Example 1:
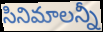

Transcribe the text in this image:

సినిమాలన్నీ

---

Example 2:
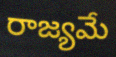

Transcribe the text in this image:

రాజ్యమే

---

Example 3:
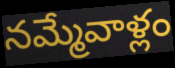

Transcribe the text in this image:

నమ్మేవాళ్లం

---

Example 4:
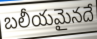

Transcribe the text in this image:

బలీయమైనదే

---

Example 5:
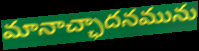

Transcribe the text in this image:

మానాచ్ఛాదనమును